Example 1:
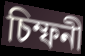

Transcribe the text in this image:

চিম্ফনী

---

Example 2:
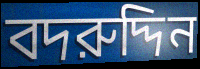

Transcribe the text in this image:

বদৰুদ্দিন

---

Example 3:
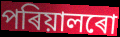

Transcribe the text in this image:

পৰিয়ালৰো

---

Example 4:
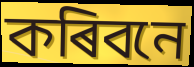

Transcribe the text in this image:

কৰিবনে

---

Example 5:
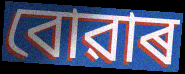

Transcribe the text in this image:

বোৱাৰ